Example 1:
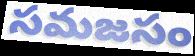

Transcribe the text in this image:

సమజసం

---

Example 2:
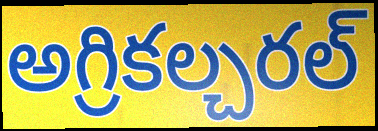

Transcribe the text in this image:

అగ్రికల్చరల్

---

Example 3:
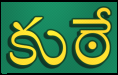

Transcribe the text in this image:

కుఠే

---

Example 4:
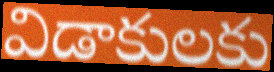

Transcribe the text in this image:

విడాకులకు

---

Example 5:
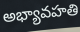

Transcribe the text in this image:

అభ్యావహతి